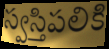
స్వస్తిపలికి